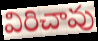
విరిచావు